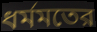
ধর্মমতের